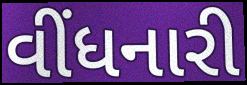
વીંધનારી